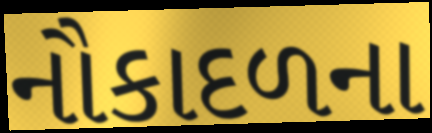
નૌકાદળના